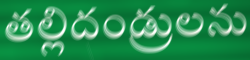
తల్లిదండ్రులను